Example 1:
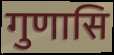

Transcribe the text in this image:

गुणासि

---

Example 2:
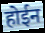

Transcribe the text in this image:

होईन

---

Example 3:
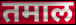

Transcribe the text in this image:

तमाल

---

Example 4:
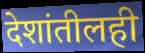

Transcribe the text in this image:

देशांतीलही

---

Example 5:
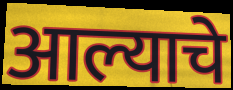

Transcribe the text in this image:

आल्याचे